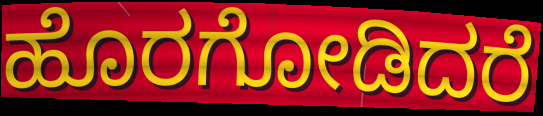
ಹೊರಗೋಡಿದರೆ